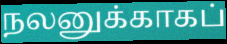
நலனுக்காகப்